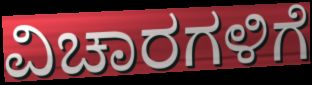
ವಿಚಾರಗಳಿಗೆ